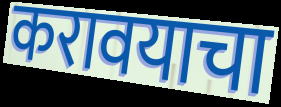
करावयाचा